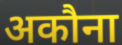
अकौना